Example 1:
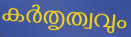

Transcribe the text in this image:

കർതൃത്വവും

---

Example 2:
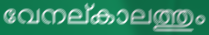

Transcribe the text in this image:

വേനല്കാലത്തും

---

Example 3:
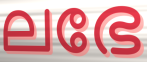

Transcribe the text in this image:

ലഭേ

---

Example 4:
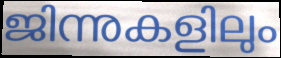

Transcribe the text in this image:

ജിന്നുകളിലും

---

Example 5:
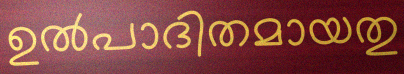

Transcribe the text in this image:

ഉൽപാദിതമായതു